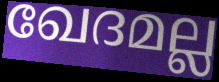
ഖേദമല്ല